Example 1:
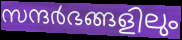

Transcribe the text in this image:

സന്ദർഭങ്ങളിലും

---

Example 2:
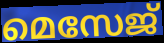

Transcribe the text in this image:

മെസേജ്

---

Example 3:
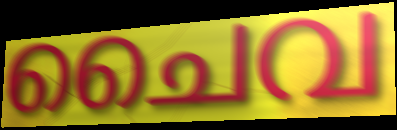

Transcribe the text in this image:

ചൈവ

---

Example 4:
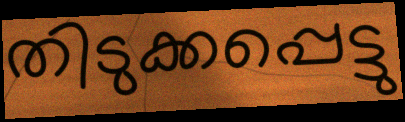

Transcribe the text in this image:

തിടുക്കപ്പെട്ടു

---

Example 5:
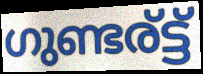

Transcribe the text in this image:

ഗുണ്ടര്ട്ട്